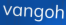
vangoh